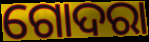
ଗୋଦରା